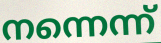
നന്നെന്ന്